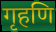
गृहणि